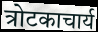
त्रोटकाचार्य